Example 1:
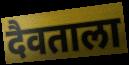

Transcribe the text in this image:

दैवताला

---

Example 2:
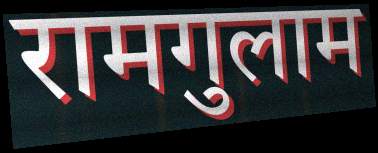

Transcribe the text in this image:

रामगुलाम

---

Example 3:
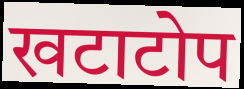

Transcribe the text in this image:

खटाटोप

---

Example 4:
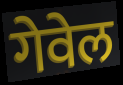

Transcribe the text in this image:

गेवेल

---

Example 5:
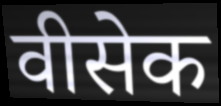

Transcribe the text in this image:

वीसेक